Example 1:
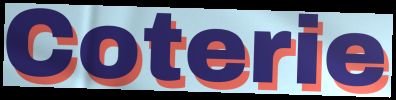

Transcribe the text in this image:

Coterie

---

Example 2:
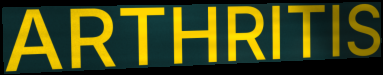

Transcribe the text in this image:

ARTHRITIS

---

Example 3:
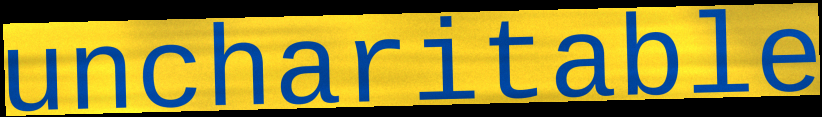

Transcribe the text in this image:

uncharitable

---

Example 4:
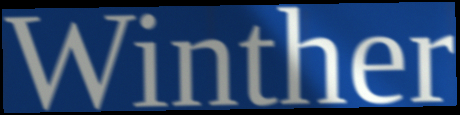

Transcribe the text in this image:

Winther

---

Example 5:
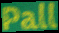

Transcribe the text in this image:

Pall